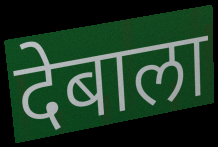
देबाला